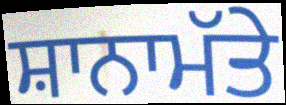
ਸ਼ਾਨਾਮੱਤੇ